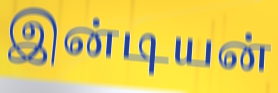
இன்டியன்